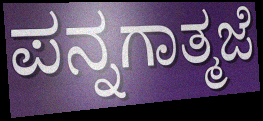
ಪನ್ನಗಾತ್ಮಜೆ